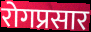
रोगप्रसार